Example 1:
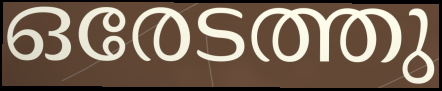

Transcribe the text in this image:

ഒരേടത്തു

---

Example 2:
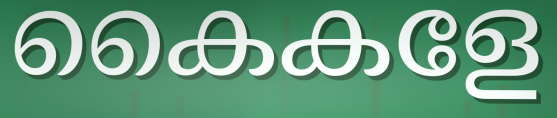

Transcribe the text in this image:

കൈകളേ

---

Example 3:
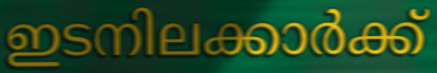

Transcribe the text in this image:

ഇടനിലക്കാർക്ക്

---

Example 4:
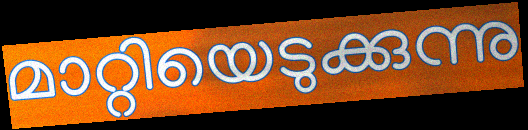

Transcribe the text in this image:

മാറ്റിയെടുക്കുന്നു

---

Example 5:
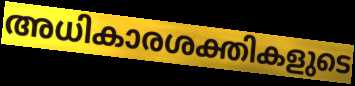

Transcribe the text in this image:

അധികാരശക്തികളുടെ